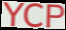
YCP